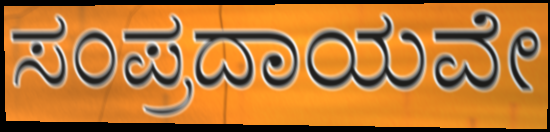
ಸಂಪ್ರದಾಯವೇ